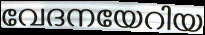
വേദനയേറിയ